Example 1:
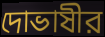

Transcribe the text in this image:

দোভাষীর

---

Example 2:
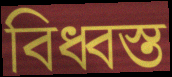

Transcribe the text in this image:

বিধ্বস্ত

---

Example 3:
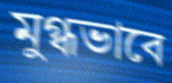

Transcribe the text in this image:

মুগ্ধভাবে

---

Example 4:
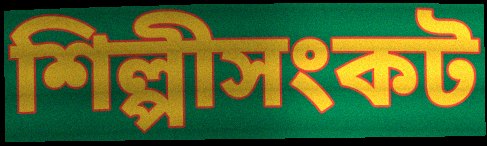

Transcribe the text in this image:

শিল্পীসংকট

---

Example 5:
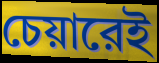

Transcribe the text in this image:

চেয়ারেই